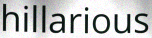
hillarious